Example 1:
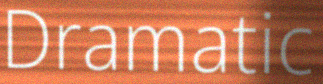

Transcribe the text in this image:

Dramatic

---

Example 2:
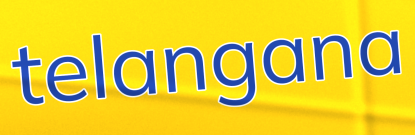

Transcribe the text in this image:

telangana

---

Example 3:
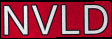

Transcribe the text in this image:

NVLD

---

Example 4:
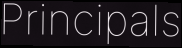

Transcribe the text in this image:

Principals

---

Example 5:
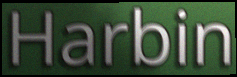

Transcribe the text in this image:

Harbin